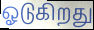
ஓடுகிறது